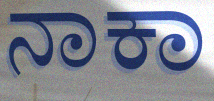
ನಾಕಾ